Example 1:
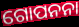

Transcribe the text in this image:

ଗୋପନନା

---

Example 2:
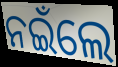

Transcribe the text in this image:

ନଇଁଲେ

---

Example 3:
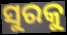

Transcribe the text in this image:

ସୁରକୁ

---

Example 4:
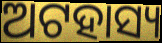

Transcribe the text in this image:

ଅଟହାସ୍ୟ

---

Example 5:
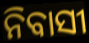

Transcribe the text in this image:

ନିବାସୀ